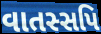
વાતસ્સપિ